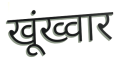
खूंख्वार